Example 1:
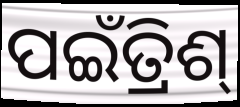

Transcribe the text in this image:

ପଇଁତ୍ରିଶ୍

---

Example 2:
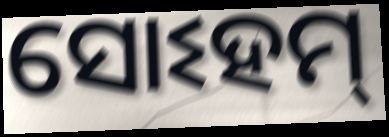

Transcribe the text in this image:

ସୋଽହମ୍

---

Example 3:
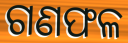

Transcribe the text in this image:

ଗଣଫଳ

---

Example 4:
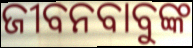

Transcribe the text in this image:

ଜୀବନବାବୁଙ୍କ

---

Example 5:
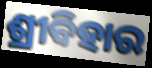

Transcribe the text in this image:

ଶ୍ରୀବିହାର